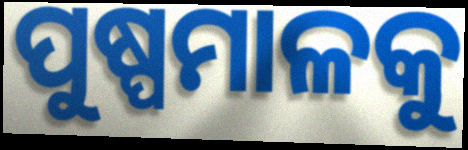
ପୁଷ୍ପମାଳକୁ